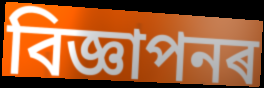
বিজ্ঞাপনৰ